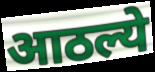
आठल्ये